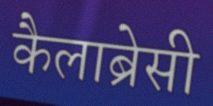
कैलाब्रेसी